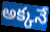
అక్కనే